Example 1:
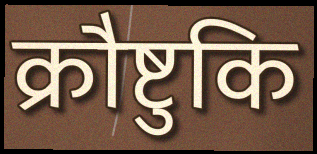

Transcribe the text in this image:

क्रौष्टुकि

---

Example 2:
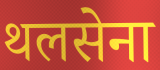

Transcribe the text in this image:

थलसेना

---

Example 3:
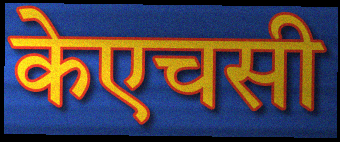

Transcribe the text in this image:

केएचसी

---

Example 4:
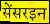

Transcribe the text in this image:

सेंसरइन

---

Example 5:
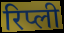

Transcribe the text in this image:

रिप्ली